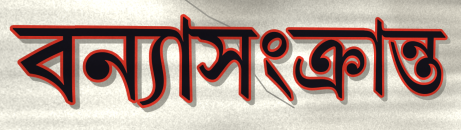
বন্যাসংক্রান্ত